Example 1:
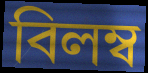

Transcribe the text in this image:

বিলম্ব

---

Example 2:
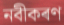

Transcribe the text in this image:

নবীকৰণ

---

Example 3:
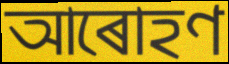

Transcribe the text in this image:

আৰোহণ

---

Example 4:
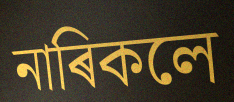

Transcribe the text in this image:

নাৰিকলে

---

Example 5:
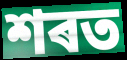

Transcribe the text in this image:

শৰত